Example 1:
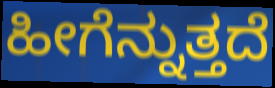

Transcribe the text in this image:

ಹೀಗೆನ್ನುತ್ತದೆ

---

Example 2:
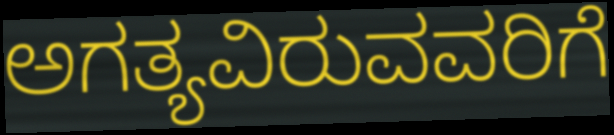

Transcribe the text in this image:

ಅಗತ್ಯವಿರುವವರಿಗೆ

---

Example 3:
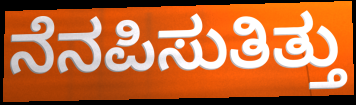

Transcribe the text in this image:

ನೆನಪಿಸುತಿತ್ತು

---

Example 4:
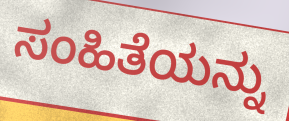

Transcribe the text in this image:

ಸಂಹಿತೆಯನ್ನು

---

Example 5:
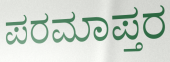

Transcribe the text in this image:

ಪರಮಾಪ್ತರ